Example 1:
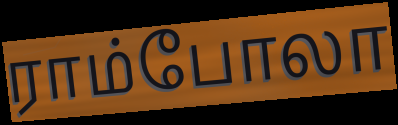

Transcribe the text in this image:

ராம்போலா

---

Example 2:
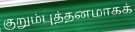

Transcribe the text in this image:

குறும்புத்தனமாகக்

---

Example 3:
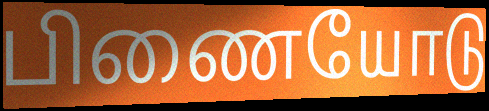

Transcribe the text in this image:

பிணையோடு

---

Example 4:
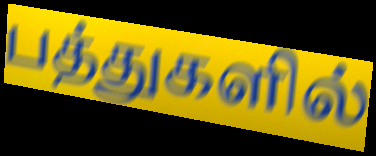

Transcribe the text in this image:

பத்துகளில்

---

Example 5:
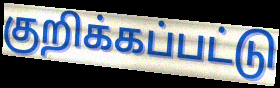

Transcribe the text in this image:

குறிக்கப்பட்டு